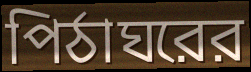
পিঠাঘরের